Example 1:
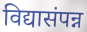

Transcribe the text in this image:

विद्यासंपन्न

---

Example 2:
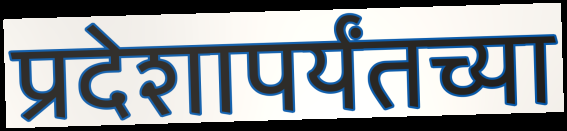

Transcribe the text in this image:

प्रदेशापर्यंतच्या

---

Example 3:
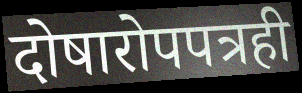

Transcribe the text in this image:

दोषारोपपत्रही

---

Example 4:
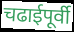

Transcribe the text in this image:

चढाईपूर्वी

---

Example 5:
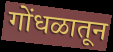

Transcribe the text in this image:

गोंधळातून